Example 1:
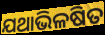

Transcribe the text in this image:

ଯଥାଭିଳଷିତ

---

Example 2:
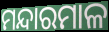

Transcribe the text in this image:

ମନ୍ଦାରମାଳ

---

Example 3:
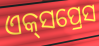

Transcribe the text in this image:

ଏକ୍‍ସପ୍ରେସ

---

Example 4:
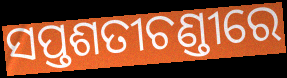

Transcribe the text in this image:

ସପ୍ତଶତୀଚଣ୍ଡୀରେ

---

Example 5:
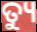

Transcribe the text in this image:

ତ୍ୟୁ